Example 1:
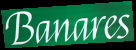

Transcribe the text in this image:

Banares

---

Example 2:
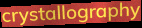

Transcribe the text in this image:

crystallography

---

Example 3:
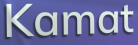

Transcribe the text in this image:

Kamat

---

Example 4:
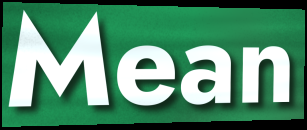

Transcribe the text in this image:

Mean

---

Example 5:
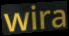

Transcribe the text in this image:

wira